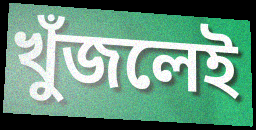
খুঁজলেই